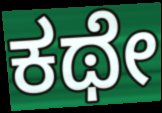
ಕಥೇ